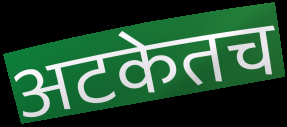
अटकेतच